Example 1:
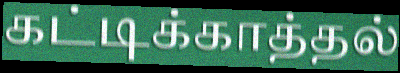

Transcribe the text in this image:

கட்டிக்காத்தல்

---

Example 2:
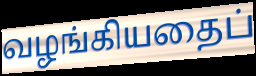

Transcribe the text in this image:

வழங்கியதைப்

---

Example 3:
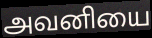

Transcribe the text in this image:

அவனியை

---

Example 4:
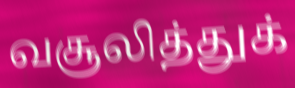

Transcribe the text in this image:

வசூலித்துக்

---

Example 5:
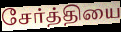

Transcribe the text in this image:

சேர்த்தியை